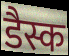
डैस्क